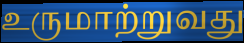
உருமாற்றுவது